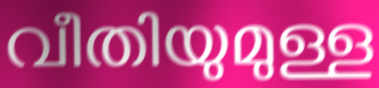
വീതിയുമുള്ള